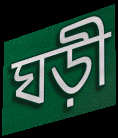
ঘড়ী